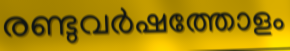
രണ്ടുവർഷത്തോളം